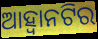
ଆହ୍ଵାନଟିର